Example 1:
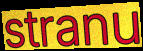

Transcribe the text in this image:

stranu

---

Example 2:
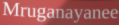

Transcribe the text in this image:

Mruganayanee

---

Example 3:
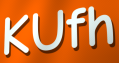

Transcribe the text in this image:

KUfh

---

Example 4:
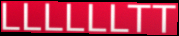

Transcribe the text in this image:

LLLLLLTT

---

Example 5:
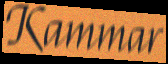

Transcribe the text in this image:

Kammar